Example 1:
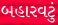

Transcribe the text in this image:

બહારવટું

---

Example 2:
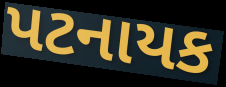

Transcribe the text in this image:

પટનાયક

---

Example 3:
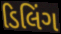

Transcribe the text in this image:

ડિલિંગ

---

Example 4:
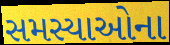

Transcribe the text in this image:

સમસ્યાઓના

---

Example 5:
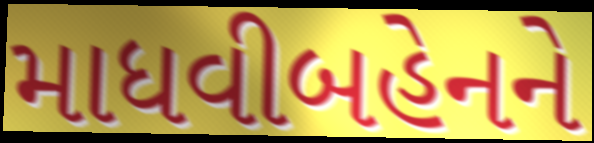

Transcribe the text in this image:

માધવીબહેનને